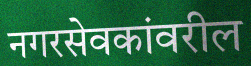
नगरसेवकांवरील